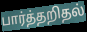
பார்த்தறிதல்